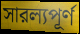
সারল্যপূর্ণ